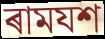
ৰামযশ